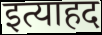
इत्याहद